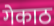
गेकाठ